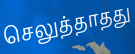
செலுத்தாதது